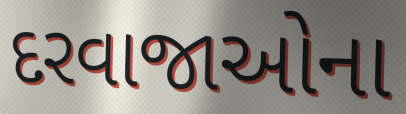
દરવાજાઓના